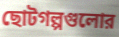
ছোটগল্পগুলোর